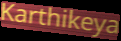
Karthikeya